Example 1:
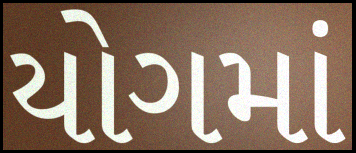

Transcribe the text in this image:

યોગમાં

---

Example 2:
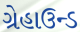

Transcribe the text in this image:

ગ્રેહાઉન્ડ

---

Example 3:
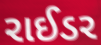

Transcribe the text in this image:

રાઈડર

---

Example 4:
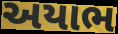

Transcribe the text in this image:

અયાભ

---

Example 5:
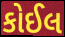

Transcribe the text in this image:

કોઈલ